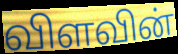
விளவின்